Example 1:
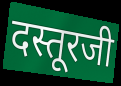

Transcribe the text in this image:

दस्तूरजी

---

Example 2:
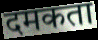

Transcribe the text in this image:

दमकता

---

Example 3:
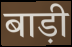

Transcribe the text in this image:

बाड़ी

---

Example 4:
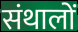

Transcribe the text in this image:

संथालों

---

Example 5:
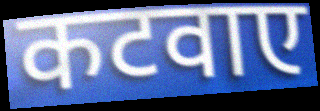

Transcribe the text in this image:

कटवाए